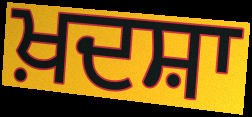
ਖ਼ਦਸ਼ਾ